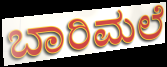
ಬಾರಿಮಲೆ